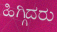
ಹಿಗ್ಗಿದರು